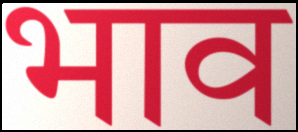
भाव